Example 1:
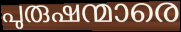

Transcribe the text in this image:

പുരുഷന്മാരെ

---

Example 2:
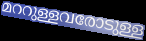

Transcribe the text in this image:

മററുള്ളവരോടുള്ള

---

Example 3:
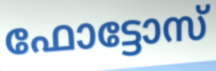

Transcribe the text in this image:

ഫോട്ടോസ്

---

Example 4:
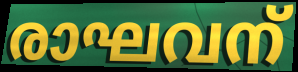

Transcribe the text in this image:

രാഘവന്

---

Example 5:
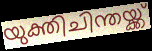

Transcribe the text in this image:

യുക്തിചിന്തയ്ക്ക്